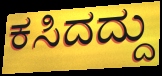
ಕಸಿದದ್ದು